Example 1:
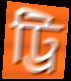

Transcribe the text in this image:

ট্রি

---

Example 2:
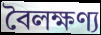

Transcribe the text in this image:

বৈলক্ষণ্য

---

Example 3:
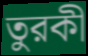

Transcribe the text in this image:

তুরকী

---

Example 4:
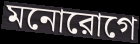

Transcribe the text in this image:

মনোরোগে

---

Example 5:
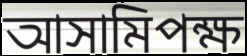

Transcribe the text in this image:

আসামিপক্ষ